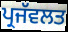
ਪ੍ਰਜੱਵਲਤ